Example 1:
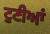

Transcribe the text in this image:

ਟੁਣੀਆਂ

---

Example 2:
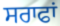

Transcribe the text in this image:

ਸਰਾਫਾਂ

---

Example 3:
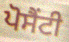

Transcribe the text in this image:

ਪੋਸੈਂਟੀ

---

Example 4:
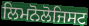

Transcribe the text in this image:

ਲਿਮਨੋਲੋਜਿਸਟ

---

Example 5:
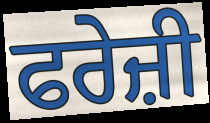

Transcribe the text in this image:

ਫਰੇਜ਼ੀ